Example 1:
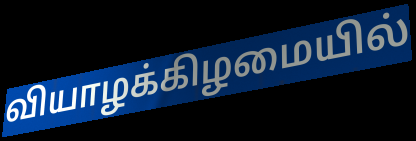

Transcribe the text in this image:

வியாழக்கிழமையில்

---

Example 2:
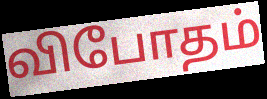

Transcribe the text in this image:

விபோதம்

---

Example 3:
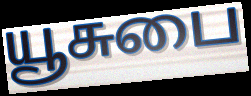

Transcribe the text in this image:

யூசுபை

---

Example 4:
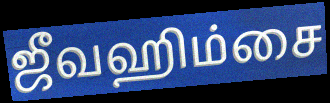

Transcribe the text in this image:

ஜீவஹிம்சை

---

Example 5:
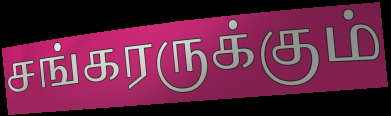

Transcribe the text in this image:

சங்கரருக்கும்